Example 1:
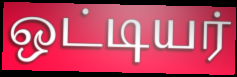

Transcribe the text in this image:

ஒட்டியர்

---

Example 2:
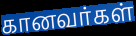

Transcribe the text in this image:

கானவர்கள்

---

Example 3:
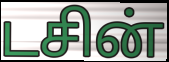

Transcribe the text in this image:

டசின்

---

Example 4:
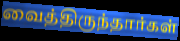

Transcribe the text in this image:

வைத்திருந்தார்கள்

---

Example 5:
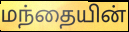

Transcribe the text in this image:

மந்தையின்